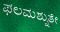
ಫಲಮಶ್ನುತೇ